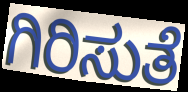
ಗಿರಿಸುತೆ